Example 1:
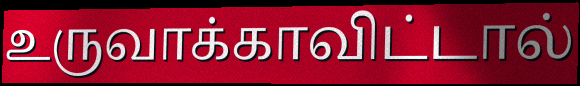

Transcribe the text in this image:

உருவாக்காவிட்டால்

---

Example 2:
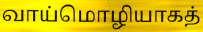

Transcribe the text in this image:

வாய்மொழியாகத்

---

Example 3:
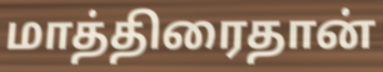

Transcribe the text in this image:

மாத்திரைதான்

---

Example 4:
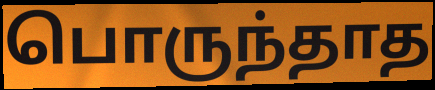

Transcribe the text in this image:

பொருந்தாத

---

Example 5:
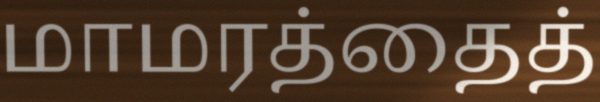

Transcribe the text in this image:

மாமரத்தைத்